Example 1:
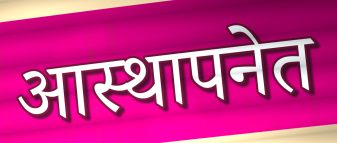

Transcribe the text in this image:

आस्थापनेत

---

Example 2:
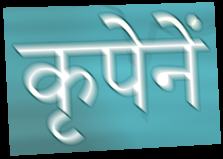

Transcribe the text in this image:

कृपेनें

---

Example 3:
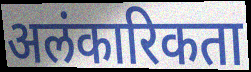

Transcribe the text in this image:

अलंकारिकता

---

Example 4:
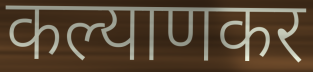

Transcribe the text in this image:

कल्याणकर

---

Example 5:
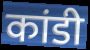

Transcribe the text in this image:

कांडी